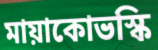
মায়াকোভস্কি